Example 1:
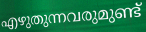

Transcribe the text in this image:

എഴുതുന്നവരുമുണ്ട്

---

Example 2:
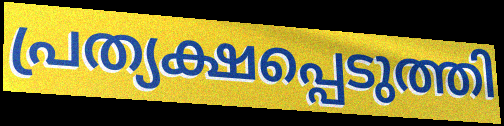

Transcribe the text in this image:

പ്രത്യക്ഷപ്പെടുത്തി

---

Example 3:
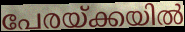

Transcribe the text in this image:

പേരയ്ക്കയിൽ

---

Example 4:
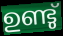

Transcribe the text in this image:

ഉണ്ടു്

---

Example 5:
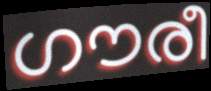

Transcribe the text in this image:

ഗൗരീ